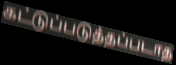
கட்டுப்படுத்தப்படாத